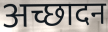
अच्छादन